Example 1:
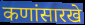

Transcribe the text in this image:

कणांसारखे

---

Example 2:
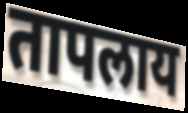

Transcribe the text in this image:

तापलाय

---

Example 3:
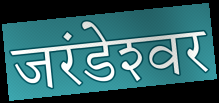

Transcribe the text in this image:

जरंडेश्वर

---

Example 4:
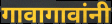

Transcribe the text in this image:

गावागावांनी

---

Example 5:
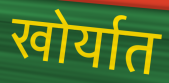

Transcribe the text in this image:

खोर्यात